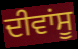
ਦੀਵਾਂਸੂ